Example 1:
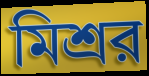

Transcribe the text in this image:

মিশ্রর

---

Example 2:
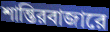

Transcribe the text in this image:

শান্তিরবাজারে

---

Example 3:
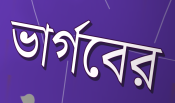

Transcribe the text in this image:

ভার্গবের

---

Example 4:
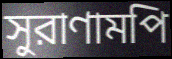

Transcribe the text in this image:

সুরাণামপি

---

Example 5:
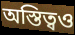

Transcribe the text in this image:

অস্তিত্বও